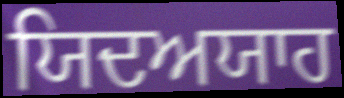
ਯਿਦਅਯਾਹ